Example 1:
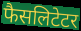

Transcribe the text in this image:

फैसलिटेटर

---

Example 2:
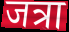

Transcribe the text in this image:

जत्रा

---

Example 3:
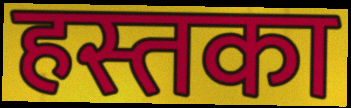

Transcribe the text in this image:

हस्तका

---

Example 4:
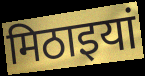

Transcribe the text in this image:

मिठाइयां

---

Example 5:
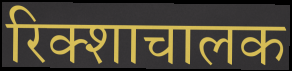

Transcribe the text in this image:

रिक्शाचालक